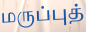
மருப்புத்